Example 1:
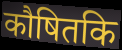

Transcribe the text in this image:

कौषितकि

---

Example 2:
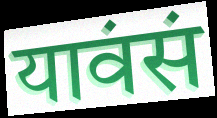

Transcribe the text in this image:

यावंसं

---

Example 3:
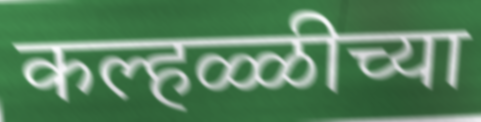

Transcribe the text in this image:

कल्हळ्ळीच्या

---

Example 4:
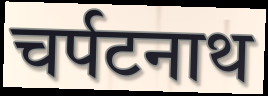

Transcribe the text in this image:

चर्पटनाथ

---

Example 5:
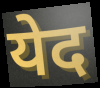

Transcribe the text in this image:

येद